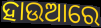
ହାଉଆରେ